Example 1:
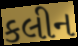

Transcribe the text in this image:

કલીન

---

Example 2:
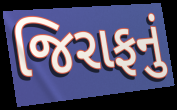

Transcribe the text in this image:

જિરાફનું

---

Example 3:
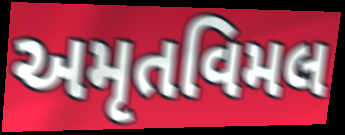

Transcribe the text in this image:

અમૃતવિમલ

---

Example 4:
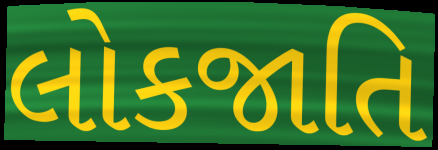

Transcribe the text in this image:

લોકજાતિ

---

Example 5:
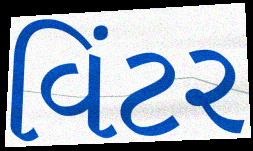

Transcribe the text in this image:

વિંટર